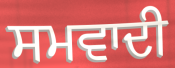
ਸਮਵਾਦੀ